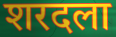
शरदला